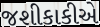
જશીકાકીએ